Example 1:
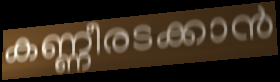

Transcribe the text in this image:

കണ്ണീരടക്കാൻ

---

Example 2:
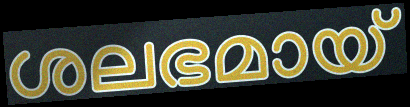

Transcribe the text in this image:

ശലഭമായ്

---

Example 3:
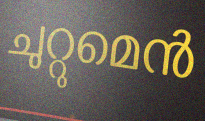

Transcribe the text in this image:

ചുറ്റുമെൻ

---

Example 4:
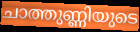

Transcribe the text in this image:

ചാത്തുണ്ണിയുടെ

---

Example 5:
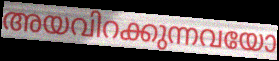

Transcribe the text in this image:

അയവിറക്കുന്നവയോ